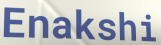
Enakshi